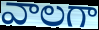
వాలగా